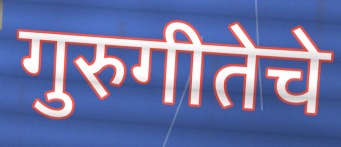
गुरुगीतेचे